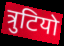
त्रुटियो